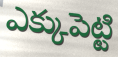
ఎక్కుపెట్టి